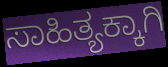
ಸಾಹಿತ್ಯಕ್ಕಾಗಿ